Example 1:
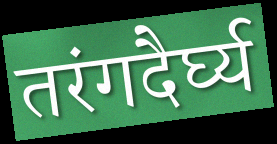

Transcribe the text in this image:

तरंगदैर्घ्य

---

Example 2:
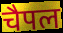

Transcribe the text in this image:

चैपल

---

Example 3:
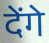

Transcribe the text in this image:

देंगे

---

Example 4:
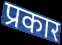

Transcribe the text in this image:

प्रकार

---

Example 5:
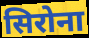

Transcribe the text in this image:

सिरोना